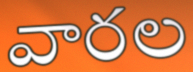
వారల